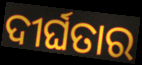
ଦୀର୍ଘତାର